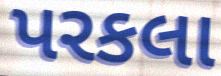
પરકલા